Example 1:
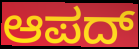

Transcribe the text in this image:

ಆಪದ್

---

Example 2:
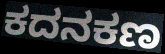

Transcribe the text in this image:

ಕದನಕಣ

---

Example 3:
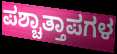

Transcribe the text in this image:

ಪಶ್ಚಾತ್ತಾಪಗಳ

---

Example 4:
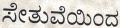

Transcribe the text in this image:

ಸೇತುವೆಯಿಂದ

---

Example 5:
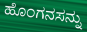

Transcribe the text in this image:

ಹೊಂಗನಸನ್ನು